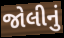
જોલીનું